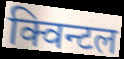
क्विन्टल